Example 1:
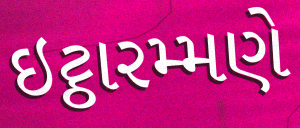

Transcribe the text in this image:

ઇટ્ઠારમ્મણે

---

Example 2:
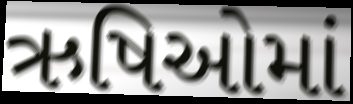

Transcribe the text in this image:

ઋષિઓમાં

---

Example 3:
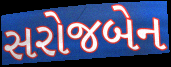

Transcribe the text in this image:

સરોજબેન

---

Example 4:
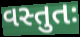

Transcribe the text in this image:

વસ્તુતઃ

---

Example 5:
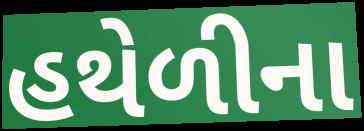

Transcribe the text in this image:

હથેળીના